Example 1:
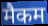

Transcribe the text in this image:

मैकम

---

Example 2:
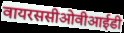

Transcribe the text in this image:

वायरससीओवीआईडी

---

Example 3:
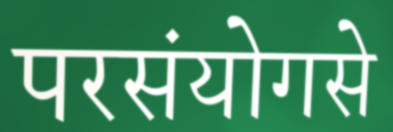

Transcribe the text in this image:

परसंयोगसे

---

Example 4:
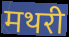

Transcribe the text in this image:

मथरी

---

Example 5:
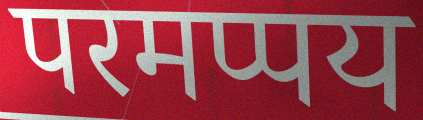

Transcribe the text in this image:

परमप्पय